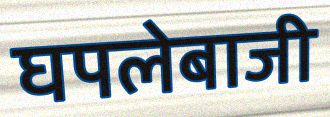
घपलेबाजी